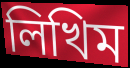
লিখিম